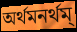
অর্থমনর্থম্